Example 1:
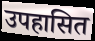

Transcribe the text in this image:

उपहासित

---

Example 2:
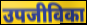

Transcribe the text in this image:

उपजीविका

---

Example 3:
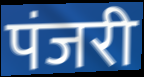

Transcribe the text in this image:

पंजरी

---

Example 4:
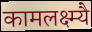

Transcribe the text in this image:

कामलक्ष्म्यै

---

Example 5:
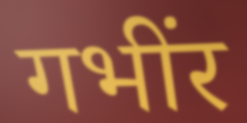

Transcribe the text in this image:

गभींर